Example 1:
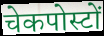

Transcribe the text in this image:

चेकपोस्टों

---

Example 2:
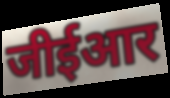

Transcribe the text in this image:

जीईआर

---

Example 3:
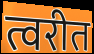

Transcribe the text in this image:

त्वरीत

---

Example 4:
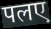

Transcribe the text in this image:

पलए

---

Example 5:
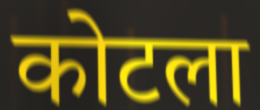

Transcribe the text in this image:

कोटला